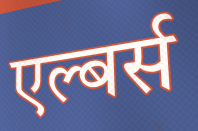
एल्बर्स